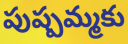
పుష్పమ్మకు